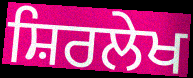
ਸ਼ਿਰਲੇਖ